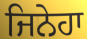
ਜਿਨੇਹਾ